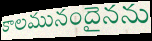
కాలమునందైనను